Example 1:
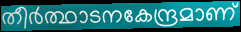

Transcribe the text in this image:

തീർത്ഥാടനകേന്ദ്രമാണ്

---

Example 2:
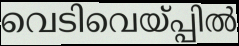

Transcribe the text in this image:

വെടിവെയ്പ്പിൽ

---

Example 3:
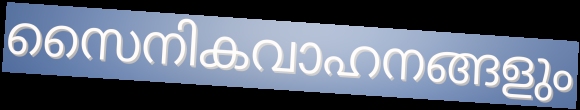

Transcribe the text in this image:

സൈനികവാഹനങ്ങളും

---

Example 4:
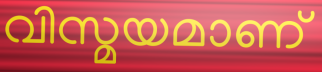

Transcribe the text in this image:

വിസ്മയമാണ്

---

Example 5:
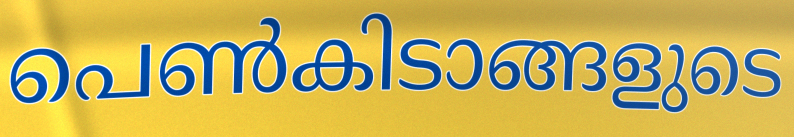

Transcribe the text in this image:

പെൺകിടാങ്ങളുടെ